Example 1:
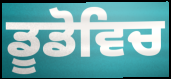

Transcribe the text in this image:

ਡੂਡੋਵਿਚ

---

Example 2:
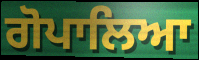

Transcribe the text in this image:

ਗੋਪਾਲਿਆ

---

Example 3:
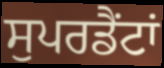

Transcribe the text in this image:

ਸੁਪਰਡੈਂਟਾਂ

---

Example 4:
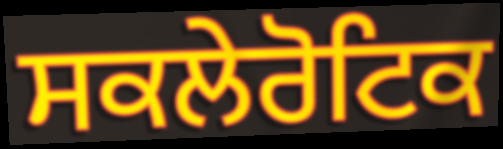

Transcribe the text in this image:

ਸਕਲੇਰੋਟਿਕ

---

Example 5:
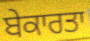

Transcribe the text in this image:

ਬੇਕਾਰਤਾ